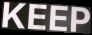
KEEP